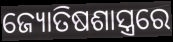
ଜ୍ୟୋତିଷଶାସ୍ତ୍ରରେ